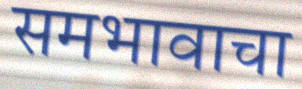
समभावाचा